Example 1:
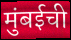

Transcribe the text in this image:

मुंबईची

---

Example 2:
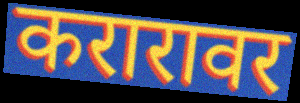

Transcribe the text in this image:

करारावर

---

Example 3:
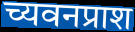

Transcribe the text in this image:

च्यवनप्राश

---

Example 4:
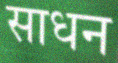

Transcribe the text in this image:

साधन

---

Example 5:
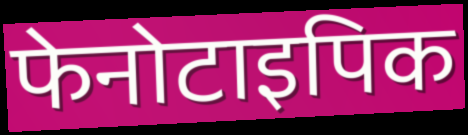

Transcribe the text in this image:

फेनोटाइपिक